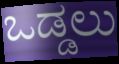
ಒಡ್ಡಲು